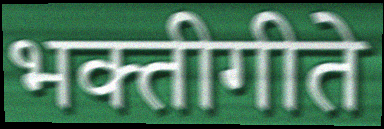
भक्तीगीते